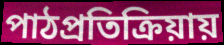
পাঠপ্রতিক্রিয়ায়